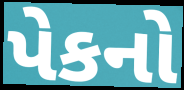
પેકનો